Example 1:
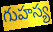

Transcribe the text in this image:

గుహస్య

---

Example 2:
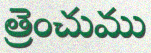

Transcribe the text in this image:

త్రెంచుము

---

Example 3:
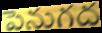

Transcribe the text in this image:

పెనుగద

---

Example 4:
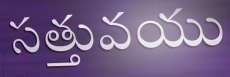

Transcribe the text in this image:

సత్తువయు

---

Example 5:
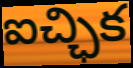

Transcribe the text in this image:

ఐచ్ఛిక